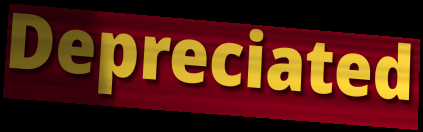
Depreciated